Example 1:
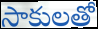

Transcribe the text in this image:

సాకులతో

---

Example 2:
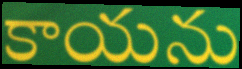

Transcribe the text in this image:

కాయను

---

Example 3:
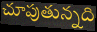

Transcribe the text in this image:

చూపుతున్నది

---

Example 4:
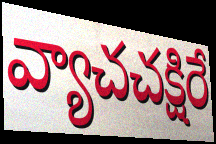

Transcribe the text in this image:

వ్యాచచక్షిరే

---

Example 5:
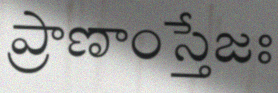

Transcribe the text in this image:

ప్రాణాంస్తేజః